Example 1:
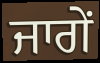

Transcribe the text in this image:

ਜਾਗੇਂ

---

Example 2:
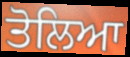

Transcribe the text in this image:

ਤੋਲਿਆ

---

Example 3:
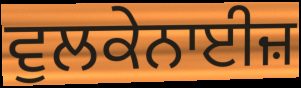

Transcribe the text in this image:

ਵੁਲਕੇਨਾਈਜ਼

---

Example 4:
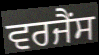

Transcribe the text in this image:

ਵਰਜੈਂਸ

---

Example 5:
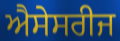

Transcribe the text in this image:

ਐਸੇਸਰੀਜ